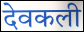
देवकली